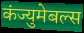
कंज्युमेबल्स